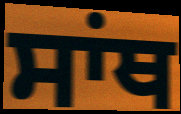
ਸਾਂਥ